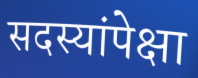
सदस्यांपेक्षा